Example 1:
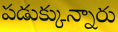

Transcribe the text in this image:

పడుక్కున్నారు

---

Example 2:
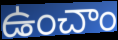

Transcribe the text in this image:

ఉంచాం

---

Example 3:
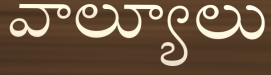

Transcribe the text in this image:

వాల్యూలు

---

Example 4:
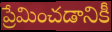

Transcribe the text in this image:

ప్రేమించడానికీ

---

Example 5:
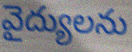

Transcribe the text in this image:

వైద్యులను